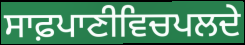
ਸਾਫ਼ਪਾਣੀਵਿਚਪਲਦੇ